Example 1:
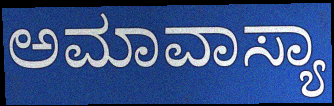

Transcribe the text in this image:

ಅಮಾವಾಸ್ಯಾ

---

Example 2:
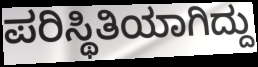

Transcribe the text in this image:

ಪರಿಸ್ಥಿತಿಯಾಗಿದ್ದು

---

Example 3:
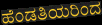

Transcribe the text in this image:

ಹೆಂಡತಿಯರಿಂದ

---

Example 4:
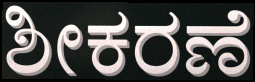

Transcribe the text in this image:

ಶೀಕರಣೆ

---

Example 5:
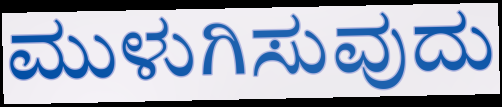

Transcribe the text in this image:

ಮುಳುಗಿಸುವುದು